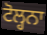
ਟੋਲ੍ਹਨਾ